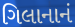
ગિલાનાનં